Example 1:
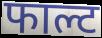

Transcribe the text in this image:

फाल्ट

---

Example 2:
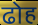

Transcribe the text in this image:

ढोह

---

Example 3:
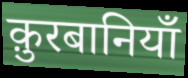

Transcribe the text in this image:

क़ुरबानियाँ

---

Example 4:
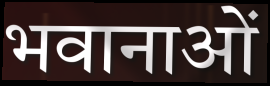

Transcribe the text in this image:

भवानाओं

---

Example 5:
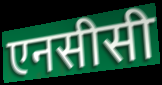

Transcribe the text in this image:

एनसीसी